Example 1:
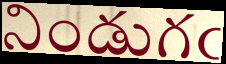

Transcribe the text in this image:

నిండుగఁ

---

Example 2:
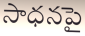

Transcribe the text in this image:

సాధనపై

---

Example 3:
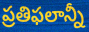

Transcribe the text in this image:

ప్రతిఫలాన్నీ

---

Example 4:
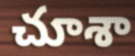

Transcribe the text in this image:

చూశా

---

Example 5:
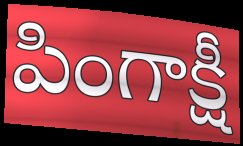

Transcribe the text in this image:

పింగాక్షీ